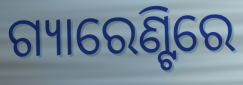
ଗ୍ୟାରେଣ୍ଟିରେ